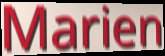
Marien